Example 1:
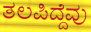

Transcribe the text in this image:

ತಲಪಿದ್ದೆವು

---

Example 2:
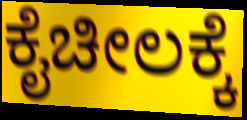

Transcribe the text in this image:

ಕೈಚೀಲಕ್ಕೆ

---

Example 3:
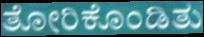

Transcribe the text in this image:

ತೋರಿಕೊಂಡಿತು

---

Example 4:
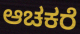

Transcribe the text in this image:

ಆಚಕರೆ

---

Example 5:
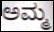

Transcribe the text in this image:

ಅಮ್ಮ